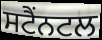
ਸਟੈਂਨਟਲ